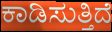
ಕಾಡಿಸುತ್ತಿದೆ